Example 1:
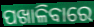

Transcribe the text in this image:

ପଖାଳିବାରେ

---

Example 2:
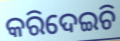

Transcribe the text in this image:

କରିଦେଇଚି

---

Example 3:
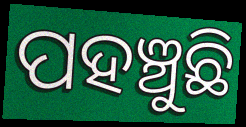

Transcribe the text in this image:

ପହଞ୍ଚୁଛି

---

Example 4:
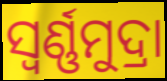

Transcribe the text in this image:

ସ୍ୱର୍ଣ୍ଣମୁଦ୍ରା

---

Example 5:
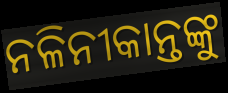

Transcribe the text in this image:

ନଳିନୀକାନ୍ତଙ୍କୁ